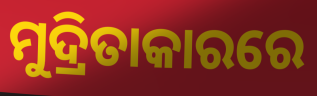
ମୁଦ୍ରିତାକାରରେ